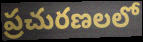
ప్రచురణలలో